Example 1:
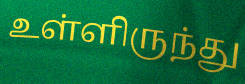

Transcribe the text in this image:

உள்ளிருந்து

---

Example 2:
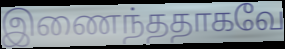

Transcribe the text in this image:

இணைந்ததாகவே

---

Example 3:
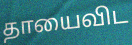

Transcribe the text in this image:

தாயைவிட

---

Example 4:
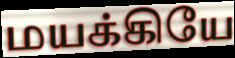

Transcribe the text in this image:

மயக்கியே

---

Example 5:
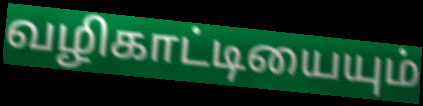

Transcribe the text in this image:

வழிகாட்டியையும்